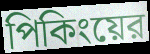
পিকিংয়ের